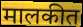
मालकीत